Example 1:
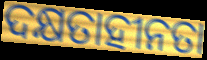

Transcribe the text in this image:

ଦକ୍ଷତାହୀନତା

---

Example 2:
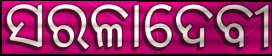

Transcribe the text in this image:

ସରଳାଦେବୀ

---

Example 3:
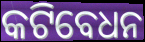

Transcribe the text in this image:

କଟିବେଧନ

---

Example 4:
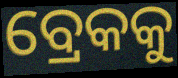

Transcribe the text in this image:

ବ୍ରେକକୁ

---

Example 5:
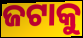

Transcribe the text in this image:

ଜଟାକୁ